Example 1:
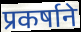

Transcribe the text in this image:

प्रकर्षाने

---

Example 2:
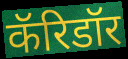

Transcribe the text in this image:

कॅरिडॉर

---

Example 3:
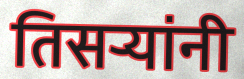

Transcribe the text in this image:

तिसऱ्यांनी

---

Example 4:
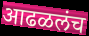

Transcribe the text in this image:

आढळलंच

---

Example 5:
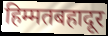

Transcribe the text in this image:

हिम्मतबहादूर